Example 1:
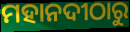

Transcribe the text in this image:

ମହାନଦୀଠାରୁ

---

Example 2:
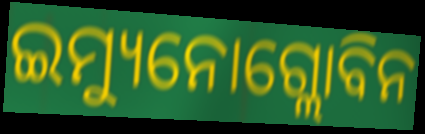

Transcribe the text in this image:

ଇମ୍ୟୁନୋଗ୍ଲୋବିନ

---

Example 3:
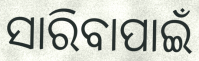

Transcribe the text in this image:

ସାରିବାପାଇଁ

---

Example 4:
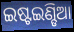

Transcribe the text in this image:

ଇଷ୍ଟଇଣ୍ଡିଆ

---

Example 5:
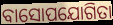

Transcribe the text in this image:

ବାସୋପଯୋଗିତା